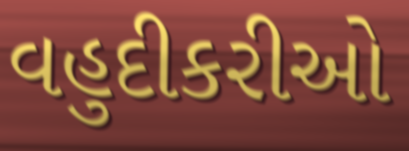
વહુદીકરીઓ